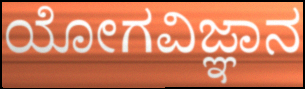
ಯೋಗವಿಜ್ಞಾನ